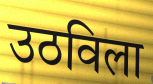
उठविला